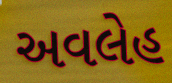
અવલેહ